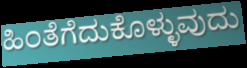
ಹಿಂತೆಗೆದುಕೊಳ್ಳುವುದು